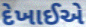
દેખાઈએ